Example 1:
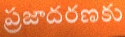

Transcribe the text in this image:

ప్రజాదరణకు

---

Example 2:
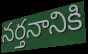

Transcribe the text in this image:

నర్తనానికి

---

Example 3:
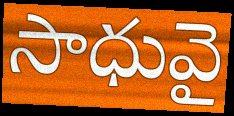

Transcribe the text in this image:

సాధువై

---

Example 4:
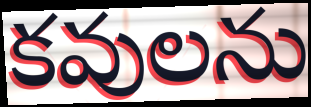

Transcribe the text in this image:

కవులను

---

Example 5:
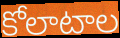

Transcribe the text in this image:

కోలాటాల